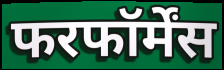
फरफॉर्मेंस